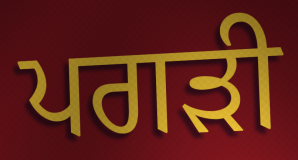
ਪਗੜੀ